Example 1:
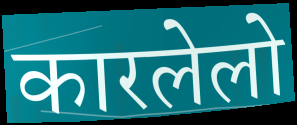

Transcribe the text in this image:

कारलेलो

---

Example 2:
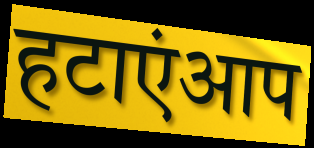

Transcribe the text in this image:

हटाएंआप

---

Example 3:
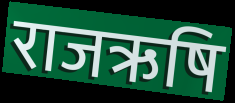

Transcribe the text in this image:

राजऋषि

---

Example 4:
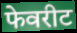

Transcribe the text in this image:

फेवरीट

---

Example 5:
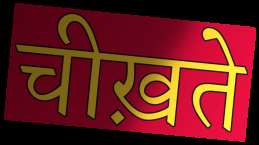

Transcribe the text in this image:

चीख़ते